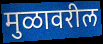
मुळावरील